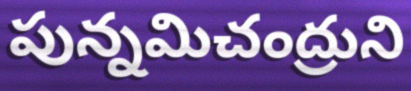
పున్నమిచంద్రుని